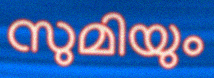
സുമിയും